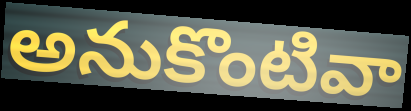
అనుకొంటివా